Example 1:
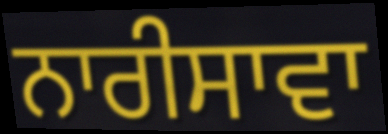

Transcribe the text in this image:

ਨਾਰੀਸਾਵਾ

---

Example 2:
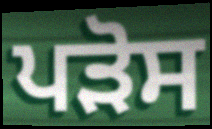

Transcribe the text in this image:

ਪੜੋਸ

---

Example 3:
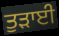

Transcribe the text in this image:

ਤੁੜਾਈ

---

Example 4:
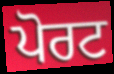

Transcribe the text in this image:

ਪੋਰਟ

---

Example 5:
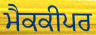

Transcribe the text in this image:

ਮੈਕਕੀਪਰ